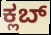
ಕ್ಲಬ್